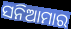
ସନିଆମାର